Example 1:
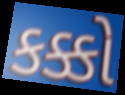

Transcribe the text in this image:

કક્કો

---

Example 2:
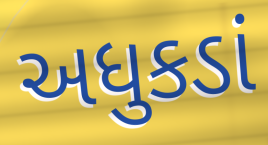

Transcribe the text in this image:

અધુકડાં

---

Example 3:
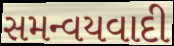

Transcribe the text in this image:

સમન્વયવાદી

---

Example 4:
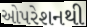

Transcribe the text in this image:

ઓપરેશનથી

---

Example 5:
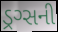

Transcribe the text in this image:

ડ્રગ્સની